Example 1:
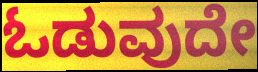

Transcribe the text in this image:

ಓಡುವುದೇ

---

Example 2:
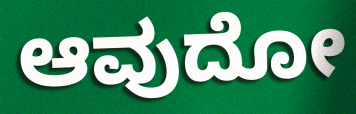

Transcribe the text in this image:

ಆವುದೋ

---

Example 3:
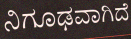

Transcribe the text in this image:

ನಿಗೂಢವಾಗಿದೆ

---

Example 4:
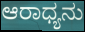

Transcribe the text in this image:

ಆರಾಧ್ಯನು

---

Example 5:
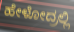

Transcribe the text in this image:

ಹೇಳೋದ್ರಲ್ಲಿ